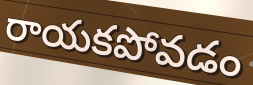
రాయకపోవడం